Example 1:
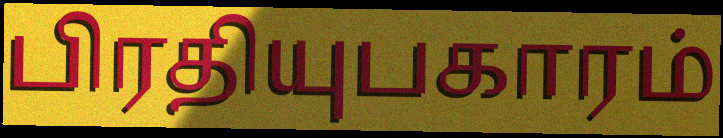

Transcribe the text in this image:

பிரதியுபகாரம்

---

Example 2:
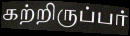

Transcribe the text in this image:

கற்றிருப்பர்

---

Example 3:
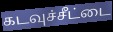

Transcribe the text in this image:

கடவுச்சீட்டை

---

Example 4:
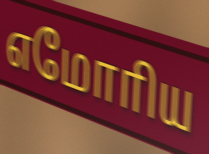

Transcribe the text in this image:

எமோரிய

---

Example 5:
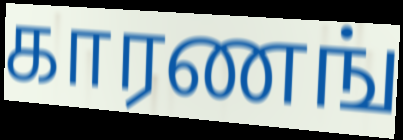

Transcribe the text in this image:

காரணங்